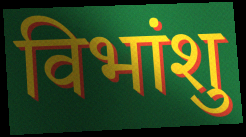
विभांशु